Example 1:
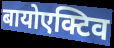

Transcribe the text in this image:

बायोएक्टिव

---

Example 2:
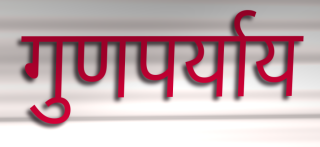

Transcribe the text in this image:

गुणपर्याय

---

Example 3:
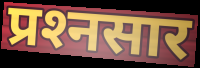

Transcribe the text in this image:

प्रश्‍नसार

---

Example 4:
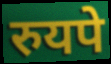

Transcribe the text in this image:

रुयपे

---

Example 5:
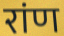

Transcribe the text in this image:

रांण